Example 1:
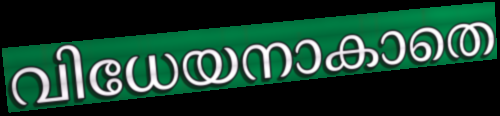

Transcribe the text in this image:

വിധേയനാകാതെ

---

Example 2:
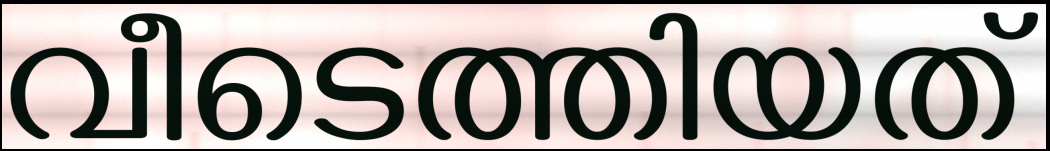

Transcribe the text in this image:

വീടെത്തിയത്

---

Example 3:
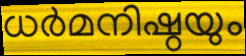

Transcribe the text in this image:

ധർമനിഷ്ഠയും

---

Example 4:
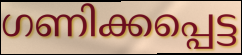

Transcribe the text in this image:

ഗണിക്കപ്പെട്ട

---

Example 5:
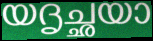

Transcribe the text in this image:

യദൃച്ഛയാ